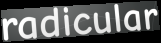
radicular